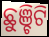
ଛୁଞ୍ଚିଟି